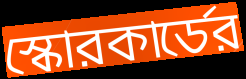
স্কোরকার্ডের